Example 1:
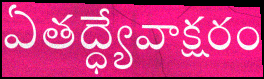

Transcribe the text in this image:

ఏతద్ధ్యేవాక్షరం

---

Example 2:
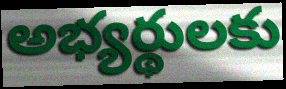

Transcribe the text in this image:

అభ్యర్థులకు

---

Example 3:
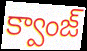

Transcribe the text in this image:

క్వాంజ్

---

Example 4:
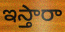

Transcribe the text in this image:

ఇస్తారా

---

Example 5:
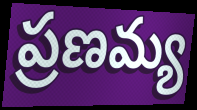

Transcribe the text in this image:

ప్రణమ్య